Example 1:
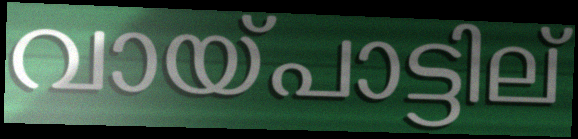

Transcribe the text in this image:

വായ്പാട്ടില്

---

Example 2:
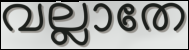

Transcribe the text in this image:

വല്ലാതേ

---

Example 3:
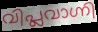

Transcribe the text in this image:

വിപ്ലവാഗ്നി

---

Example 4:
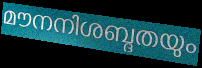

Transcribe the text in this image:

മൗനനിശബ്ദതയും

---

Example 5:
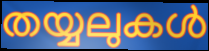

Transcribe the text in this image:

തയ്യലുകൾ